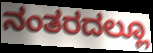
ನಂತರದಲ್ಲೂ